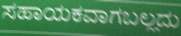
ಸಹಾಯಕವಾಗಬಲ್ಲದು